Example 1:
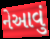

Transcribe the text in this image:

નેઆવું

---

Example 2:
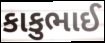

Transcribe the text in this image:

કાકુભાઈ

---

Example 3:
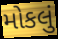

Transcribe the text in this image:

મોકલું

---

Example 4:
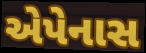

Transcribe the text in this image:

એપેનાસ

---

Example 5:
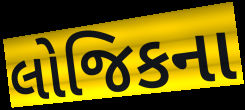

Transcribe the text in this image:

લોજિકના